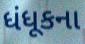
ધંધૂકના